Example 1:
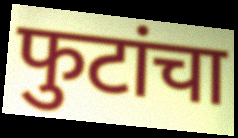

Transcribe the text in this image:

फुटांचा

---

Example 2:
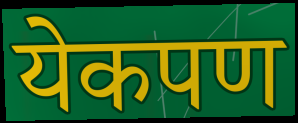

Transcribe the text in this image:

येकपण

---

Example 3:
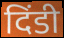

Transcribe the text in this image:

दिंडी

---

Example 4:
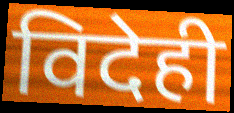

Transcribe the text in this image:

विदेही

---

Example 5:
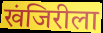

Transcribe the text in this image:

खंजिरीला